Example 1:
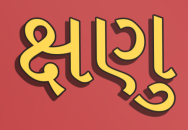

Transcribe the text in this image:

ક્ષણુ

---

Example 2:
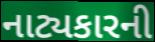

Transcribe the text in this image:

નાટ્યકારની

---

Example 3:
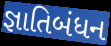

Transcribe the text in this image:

જ્ઞાતિબંધન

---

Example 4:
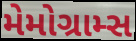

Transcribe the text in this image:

મેમોગ્રામ્સ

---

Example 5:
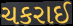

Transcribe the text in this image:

ચકરાઈ